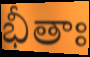
భీతాః